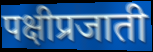
पक्षीप्रजाती